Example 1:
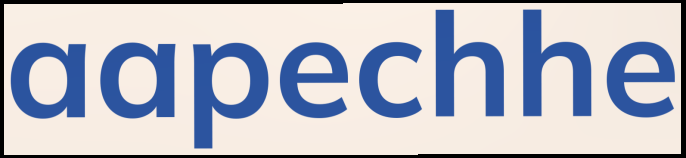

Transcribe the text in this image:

aapechhe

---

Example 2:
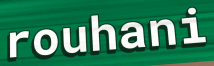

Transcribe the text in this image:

rouhani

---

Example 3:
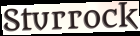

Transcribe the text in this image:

Sturrock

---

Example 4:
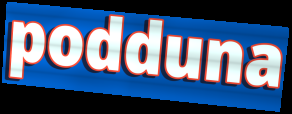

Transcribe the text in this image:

podduna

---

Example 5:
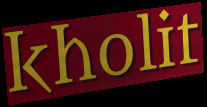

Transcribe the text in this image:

kholit